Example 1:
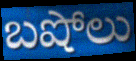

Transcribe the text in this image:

బషోలు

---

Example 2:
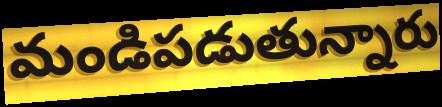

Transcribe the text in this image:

మండిపడుతున్నారు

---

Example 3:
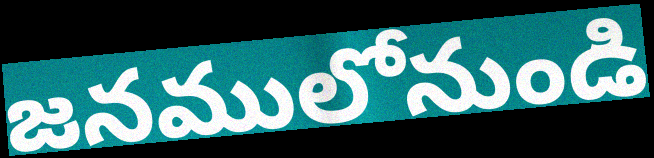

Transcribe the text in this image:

జనములోనుండి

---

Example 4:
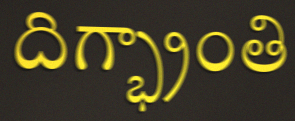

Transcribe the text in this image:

దిగ్భ్రాంతి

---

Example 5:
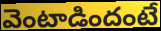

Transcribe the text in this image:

వెంటాడిందంటే